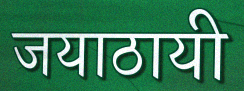
जयाठायी